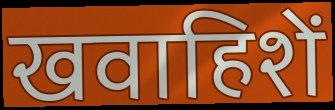
खवाहिशें